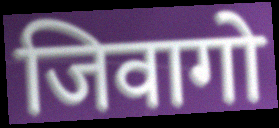
जिवागो